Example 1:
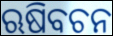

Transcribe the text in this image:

ଋଷିବଚନ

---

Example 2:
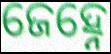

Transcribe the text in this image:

ଜେହ୍ନେ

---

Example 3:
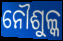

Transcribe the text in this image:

ନୌଶୁଳ୍କ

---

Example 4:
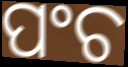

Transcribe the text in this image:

ପଂଚ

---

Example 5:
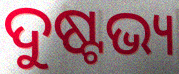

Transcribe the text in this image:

ଦୁଷ୍ଟଭ୍ୟ